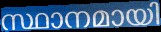
സ്ഥാനമായി